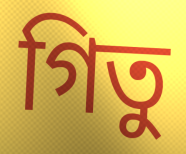
গিতু